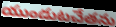
యుండుటచేతను